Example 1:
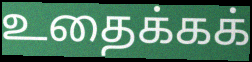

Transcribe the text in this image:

உதைக்கக்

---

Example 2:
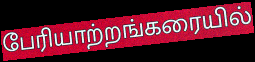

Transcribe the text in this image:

பேரியாற்றங்கரையில்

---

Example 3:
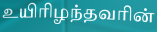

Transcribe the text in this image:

உயிரிழந்தவரின்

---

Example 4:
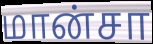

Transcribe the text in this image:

மான்சா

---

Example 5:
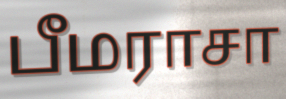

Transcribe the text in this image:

பீமராசா